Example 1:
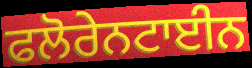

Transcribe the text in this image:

ਫਲੋਰੇਨਟਾਈਨ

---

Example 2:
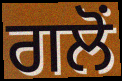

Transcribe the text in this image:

ਗਲੋਂ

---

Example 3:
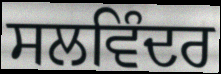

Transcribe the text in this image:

ਸਲਵਿੰਦਰ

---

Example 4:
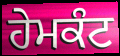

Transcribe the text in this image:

ਹੇਮਕੰਟ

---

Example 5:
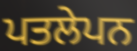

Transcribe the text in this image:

ਪਤਲੇਪਨ